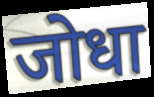
जोधा